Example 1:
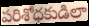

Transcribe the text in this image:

పరిశోధకుడిలా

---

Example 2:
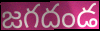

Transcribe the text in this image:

జగదండ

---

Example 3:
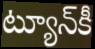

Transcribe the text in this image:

ట్యూన్‌కీ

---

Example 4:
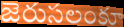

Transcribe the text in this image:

జెరుసలంకూ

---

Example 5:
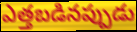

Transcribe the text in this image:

ఎత్తబడినప్పుడు